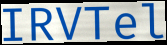
IRVTel